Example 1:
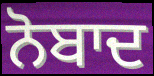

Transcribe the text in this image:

ਨੋਬਾਦ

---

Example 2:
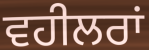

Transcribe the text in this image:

ਵਹੀਲਰਾਂ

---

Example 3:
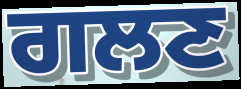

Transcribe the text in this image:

ਗਲਣ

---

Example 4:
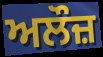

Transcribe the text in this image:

ਅਲੌਜ਼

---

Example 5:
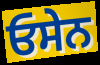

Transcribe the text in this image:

ਓਸੇਨ